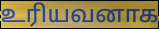
உரியவனாக